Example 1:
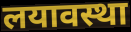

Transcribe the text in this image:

लयावस्था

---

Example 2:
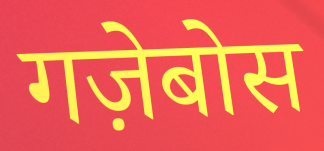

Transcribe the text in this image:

गज़ेबोस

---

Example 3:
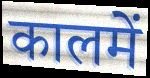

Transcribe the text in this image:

कालमें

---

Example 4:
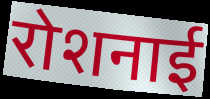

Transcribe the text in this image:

रोशनाई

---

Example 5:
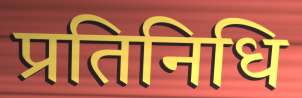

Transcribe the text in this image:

प्रतिनिधि